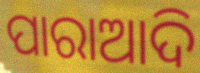
ପାରାଆଦି